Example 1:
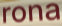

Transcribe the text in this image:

rona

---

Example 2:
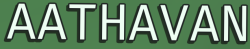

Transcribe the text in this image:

AATHAVAN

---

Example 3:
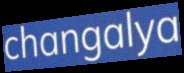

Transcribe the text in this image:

changalya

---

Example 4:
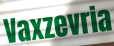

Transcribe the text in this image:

Vaxzevria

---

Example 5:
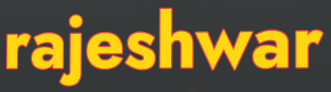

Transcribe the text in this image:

rajeshwar